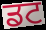
ਡਟ